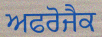
ਅਫਰੋਜੈਕ